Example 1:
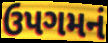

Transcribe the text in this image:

ઉપગમનં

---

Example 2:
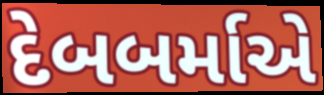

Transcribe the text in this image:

દેબબર્માએ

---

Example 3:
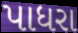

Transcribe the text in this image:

પાધરા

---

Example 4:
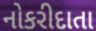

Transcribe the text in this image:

નોકરીદાતા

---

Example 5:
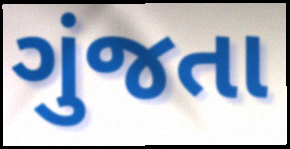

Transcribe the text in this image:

ગુંજતા